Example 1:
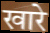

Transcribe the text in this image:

खारे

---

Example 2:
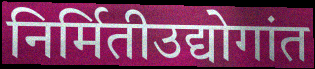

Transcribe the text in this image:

निर्मितीउद्योगांत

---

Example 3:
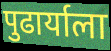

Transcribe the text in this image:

पुढार्याला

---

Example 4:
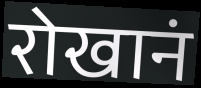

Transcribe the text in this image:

रोखानं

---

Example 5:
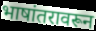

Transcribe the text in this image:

भाषांतरावरून